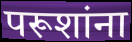
परूशांना